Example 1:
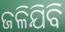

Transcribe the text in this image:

ଜଳିଯିବି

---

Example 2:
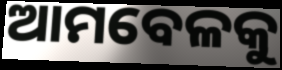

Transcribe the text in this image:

ଆମବେଳକୁ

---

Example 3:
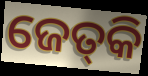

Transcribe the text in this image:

ଜେତ୍‌କି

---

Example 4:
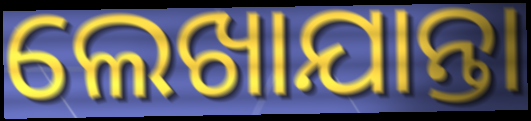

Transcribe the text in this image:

ଲେଖାଯାନ୍ତା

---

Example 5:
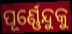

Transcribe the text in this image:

ପୂର୍ଣ୍ଣେନ୍ଦୁକୁ